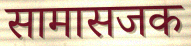
सामासजक